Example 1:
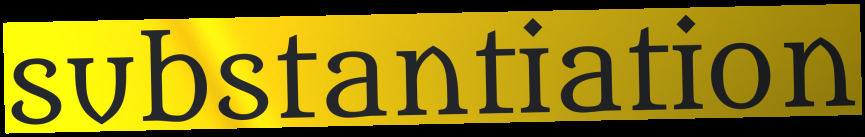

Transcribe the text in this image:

substantiation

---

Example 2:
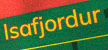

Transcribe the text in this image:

Isafjordur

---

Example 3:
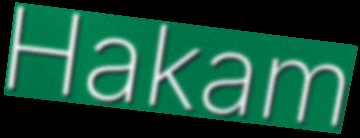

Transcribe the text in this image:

Hakam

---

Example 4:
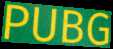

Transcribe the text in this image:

PUBG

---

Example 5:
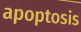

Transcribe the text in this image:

apoptosis